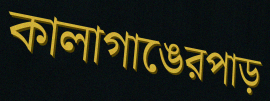
কালাগাঙেরপাড়